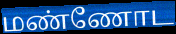
மண்ணோட